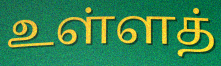
உள்ளத்